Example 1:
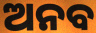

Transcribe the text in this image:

ଅନବ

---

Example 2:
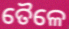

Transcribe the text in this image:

ତୈଳେ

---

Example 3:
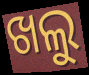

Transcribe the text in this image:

ଖଲୁ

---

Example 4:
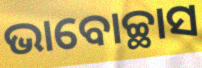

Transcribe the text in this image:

ଭାବୋଚ୍ଛାସ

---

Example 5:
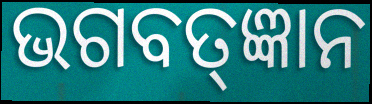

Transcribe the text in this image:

ଭଗବତ୍‌ଜ୍ଞାନ